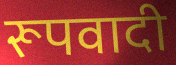
रूपवादी